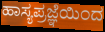
ಹಾಸ್ಯಪ್ರಜ್ಞೆಯಿಂದ